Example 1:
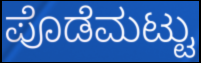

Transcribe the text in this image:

ಪೊಡೆಮಟ್ಟು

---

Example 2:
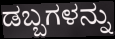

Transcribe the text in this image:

ಡಬ್ಬಗಳನ್ನು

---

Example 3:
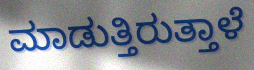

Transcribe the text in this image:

ಮಾಡುತ್ತಿರುತ್ತಾಳೆ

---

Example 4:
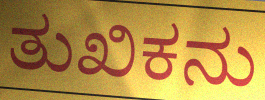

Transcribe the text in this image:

ತುಖಿಕನು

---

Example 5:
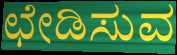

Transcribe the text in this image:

ಛೇಡಿಸುವ